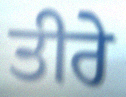
ਤੀਰੇ